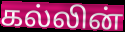
கல்லின்